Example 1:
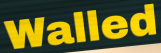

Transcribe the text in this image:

Walled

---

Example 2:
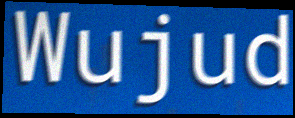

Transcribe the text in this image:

Wujud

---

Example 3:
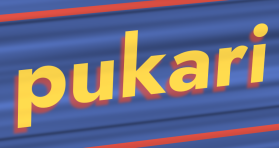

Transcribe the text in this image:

pukari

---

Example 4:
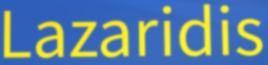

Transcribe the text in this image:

Lazaridis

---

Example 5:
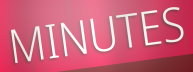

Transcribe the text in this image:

MINUTES